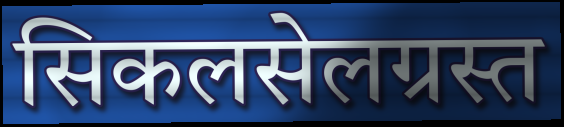
सिकलसेलग्रस्त